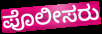
ಪೊಲೀಸರು